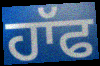
ਹਾੱਫ